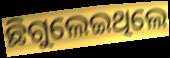
ଛିଗୁଲେଇଥିଲେ